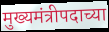
मुख्यमंत्रीपदाच्या